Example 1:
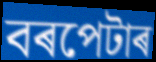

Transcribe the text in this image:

বৰপেটাৰ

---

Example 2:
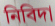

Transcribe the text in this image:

নিবিদা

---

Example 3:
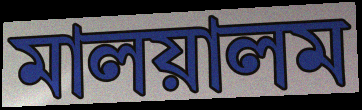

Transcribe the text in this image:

মালয়ালম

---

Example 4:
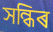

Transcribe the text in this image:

সন্ধিৰ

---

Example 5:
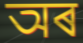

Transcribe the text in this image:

অৰ